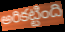
అరికట్టింది